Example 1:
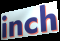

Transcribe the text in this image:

inch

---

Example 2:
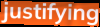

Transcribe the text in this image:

justifying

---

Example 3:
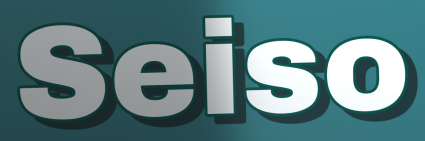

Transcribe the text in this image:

Seiso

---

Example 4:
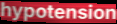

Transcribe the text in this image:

hypotension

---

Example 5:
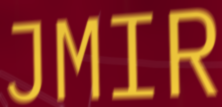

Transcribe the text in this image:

JMIR